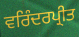
ਵਰਿੰਦਰਪ੍ਰੀਤ